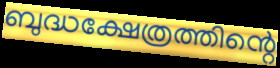
ബുദ്ധക്ഷേത്രത്തിന്റെ